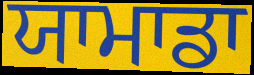
ਯਾਮਾਡਾ